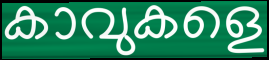
കാവുകളെ